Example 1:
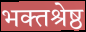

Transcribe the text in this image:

भक्तश्रेष्ठ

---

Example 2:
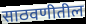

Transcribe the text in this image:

साठवणीतील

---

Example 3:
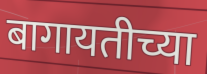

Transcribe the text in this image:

बागायतीच्या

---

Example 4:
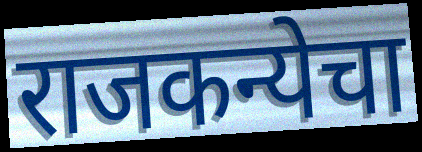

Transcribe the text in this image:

राजकन्येचा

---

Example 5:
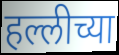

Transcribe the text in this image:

हल्लीच्या